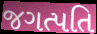
જગત્પતિ